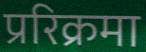
प्ररिक्रमा